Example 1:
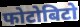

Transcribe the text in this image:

फोटोबिटो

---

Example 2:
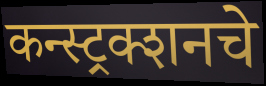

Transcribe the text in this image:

कन्स्ट्रक्शनचे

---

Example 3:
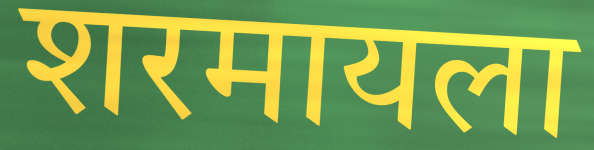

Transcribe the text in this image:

शरमायला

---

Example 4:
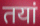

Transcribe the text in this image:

तयां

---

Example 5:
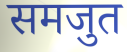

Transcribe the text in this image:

समजुत